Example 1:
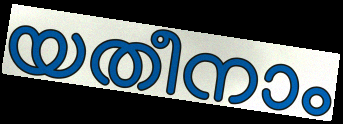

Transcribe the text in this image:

യതീനാം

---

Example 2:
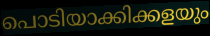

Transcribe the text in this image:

പൊടിയാക്കിക്കളയും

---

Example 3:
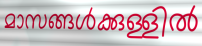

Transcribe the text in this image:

മാസങ്ങൾക്കുള്ളിൽ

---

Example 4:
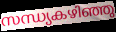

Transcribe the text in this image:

സന്ധ്യകഴിഞ്ഞു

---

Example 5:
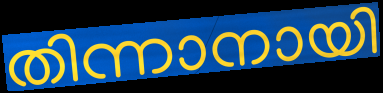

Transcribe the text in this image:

തിന്നാനായി